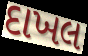
દાખલ